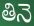
తినె